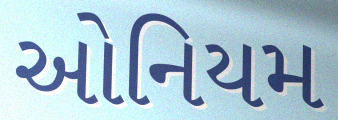
ઓનિયમ